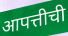
आपत्तीची